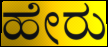
ಹೇರು